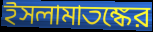
ইসলামাতঙ্কের